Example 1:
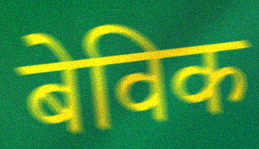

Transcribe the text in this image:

बेविक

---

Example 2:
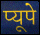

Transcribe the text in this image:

प्यूपे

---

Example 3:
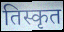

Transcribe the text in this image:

तिस्कृत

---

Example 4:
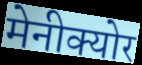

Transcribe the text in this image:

मेनीक्योर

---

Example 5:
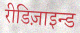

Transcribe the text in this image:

रीडिज़ाइन्ड